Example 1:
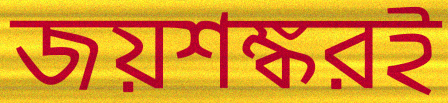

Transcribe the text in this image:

জয়শঙ্করই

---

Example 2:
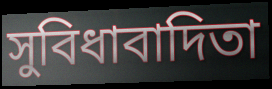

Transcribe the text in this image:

সুবিধাবাদিতা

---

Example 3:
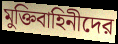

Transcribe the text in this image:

মুক্তিবাহিনীদের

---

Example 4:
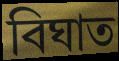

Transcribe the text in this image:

বিঘাত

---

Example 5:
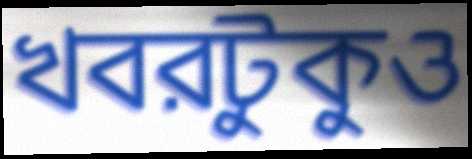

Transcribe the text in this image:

খবরটুকুও